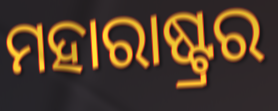
ମହାରାଷ୍ଟ୍ରର